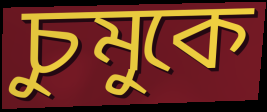
চুমুকে